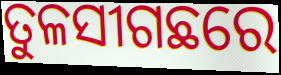
ତୁଳସୀଗଛରେ